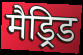
मैड्रिड